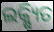
ଲକ୍ଷ୍ୟିତ